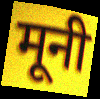
मूनी